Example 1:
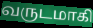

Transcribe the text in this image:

வருடமாகி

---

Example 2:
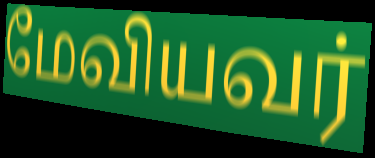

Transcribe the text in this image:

மேவியவர்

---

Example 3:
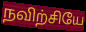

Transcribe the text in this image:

நவிற்சியே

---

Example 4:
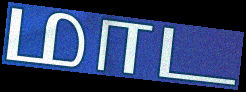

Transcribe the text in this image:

மாட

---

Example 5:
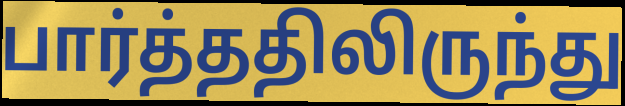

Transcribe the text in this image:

பார்த்ததிலிருந்து